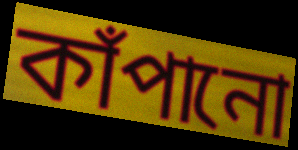
কাঁপানো